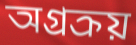
অগ্রক্রয়